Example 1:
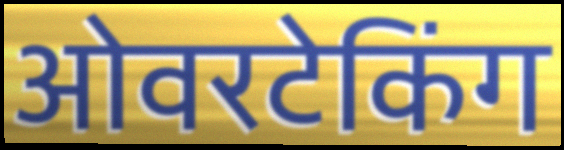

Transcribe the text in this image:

ओवरटेकिंग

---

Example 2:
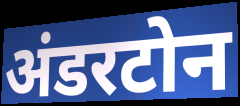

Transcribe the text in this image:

अंडरटोन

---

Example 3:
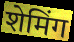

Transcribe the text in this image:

शेमिंग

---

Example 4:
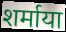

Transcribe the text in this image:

शर्माया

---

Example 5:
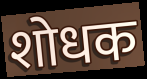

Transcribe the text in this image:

शोधक